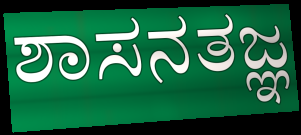
ಶಾಸನತಜ್ಞ